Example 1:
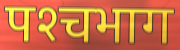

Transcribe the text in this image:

पश्चभाग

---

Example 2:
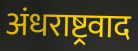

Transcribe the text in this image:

अंधराष्ट्रवाद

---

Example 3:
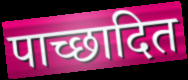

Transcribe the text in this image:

पाच्छादित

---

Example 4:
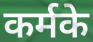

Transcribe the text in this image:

कर्मके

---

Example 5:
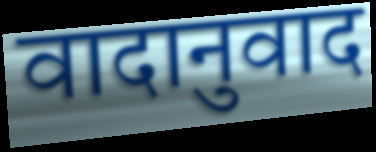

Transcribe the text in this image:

वादानुवाद